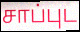
சாப்புட